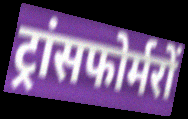
ट्रांसफोर्मरों